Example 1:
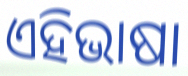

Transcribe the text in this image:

ଏହିଭାଷା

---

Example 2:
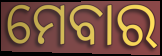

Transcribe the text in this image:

ମେବାର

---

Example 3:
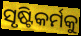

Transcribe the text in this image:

ସୃଷ୍ଟିକର୍ମକୁ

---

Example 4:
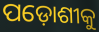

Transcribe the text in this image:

ପଡ଼ୋଶୀକୁ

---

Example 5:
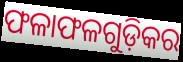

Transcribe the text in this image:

ଫଳାଫଳଗୁଡ଼ିକର